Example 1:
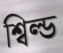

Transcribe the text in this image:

শ্বিল্ড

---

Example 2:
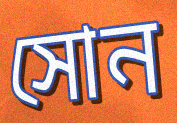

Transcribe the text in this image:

সোন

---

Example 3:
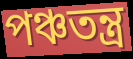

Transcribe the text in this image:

পঞ্চতন্ত্ৰ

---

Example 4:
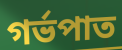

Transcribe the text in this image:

গৰ্ভপাত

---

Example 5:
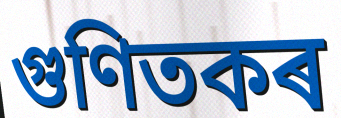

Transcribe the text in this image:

গুণিতকৰ